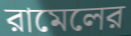
রামেলের